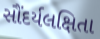
સૌંદર્યલક્ષિતા